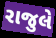
રાજુલે